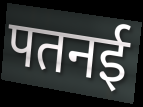
पतनई